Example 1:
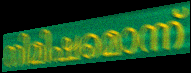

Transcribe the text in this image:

നിമിഷമൊന്ന്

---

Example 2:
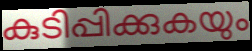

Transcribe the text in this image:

കുടിപ്പിക്കുകയും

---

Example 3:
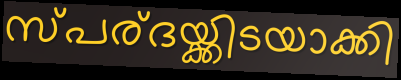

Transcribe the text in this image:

സ്പര്ദയ്ക്കിടയാക്കി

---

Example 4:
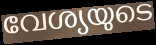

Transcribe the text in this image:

വേശ്യയുടെ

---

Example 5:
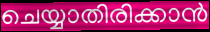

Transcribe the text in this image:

ചെയ്യാതിരിക്കാൻ